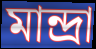
মান্দ্রা